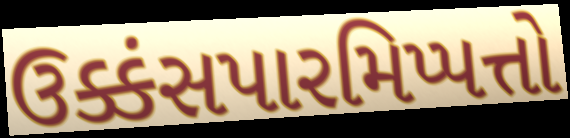
ઉક્કંસપારમિપ્પત્તો